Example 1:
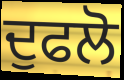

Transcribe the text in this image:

ਦੁਫਲੋ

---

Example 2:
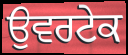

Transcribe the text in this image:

ਉਵਰਟੇਕ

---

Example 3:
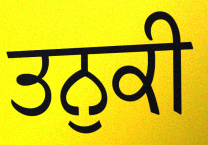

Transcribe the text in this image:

ਤਨੁਕੀ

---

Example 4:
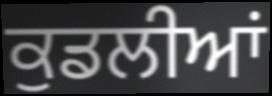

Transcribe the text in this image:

ਕੁਡਲੀਆਂ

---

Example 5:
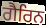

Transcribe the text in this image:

ਗੈਰਿਨ